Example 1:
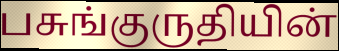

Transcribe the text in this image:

பசுங்குருதியின்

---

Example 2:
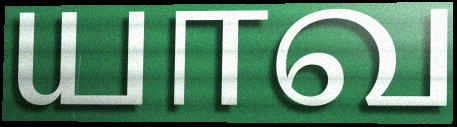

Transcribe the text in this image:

யாவ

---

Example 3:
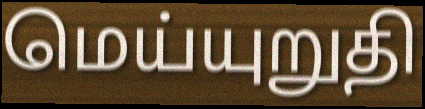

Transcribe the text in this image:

மெய்யுறுதி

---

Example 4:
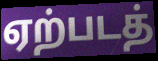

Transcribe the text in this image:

ஏற்படத்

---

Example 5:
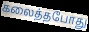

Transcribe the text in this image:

கலைத்தபோது